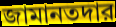
জামানতদার